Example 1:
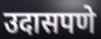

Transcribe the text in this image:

उदासपणे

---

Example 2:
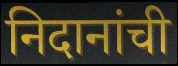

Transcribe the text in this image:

निदानांची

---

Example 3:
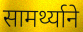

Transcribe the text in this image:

सामर्थ्याने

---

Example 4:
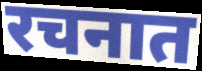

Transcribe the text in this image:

रचनात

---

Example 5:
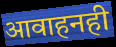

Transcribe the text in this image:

आवाहनही